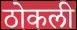
ठोकली